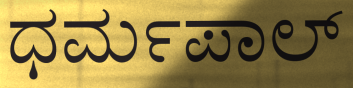
ಧರ್ಮಪಾಲ್